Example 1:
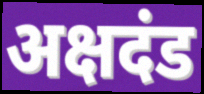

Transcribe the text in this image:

अक्षदंड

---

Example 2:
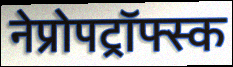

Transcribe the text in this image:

नेप्रोपट्रॉफ्स्क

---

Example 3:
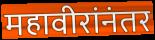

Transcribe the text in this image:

महावीरांनंतर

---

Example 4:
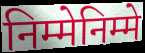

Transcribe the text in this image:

निम्मेनिम्मे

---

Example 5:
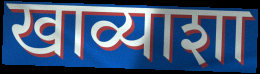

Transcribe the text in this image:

खाव्याशा